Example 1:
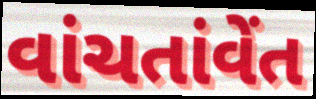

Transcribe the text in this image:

વાંચતાંવેંત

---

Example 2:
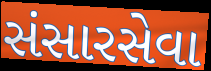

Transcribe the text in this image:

સંસારસેવા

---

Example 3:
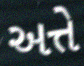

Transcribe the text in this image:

અત્તે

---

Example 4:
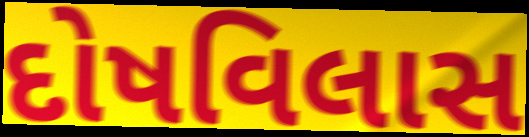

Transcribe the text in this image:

દોષવિલાસ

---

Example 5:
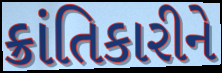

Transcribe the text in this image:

ક્રાંતિકારીને